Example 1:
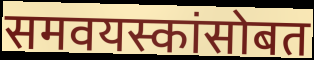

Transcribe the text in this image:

समवयस्कांसोबत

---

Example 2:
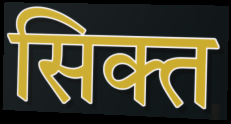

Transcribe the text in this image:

सिक्त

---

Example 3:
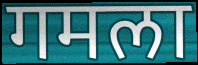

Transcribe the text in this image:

गमला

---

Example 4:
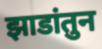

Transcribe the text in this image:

झाडांतुन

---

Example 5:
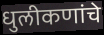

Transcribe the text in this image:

धुलीकणांचे